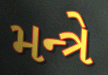
મન્ત્રે